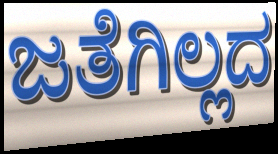
ಜತೆಗಿಲ್ಲದ